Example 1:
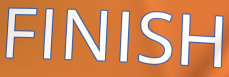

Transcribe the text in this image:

FINISH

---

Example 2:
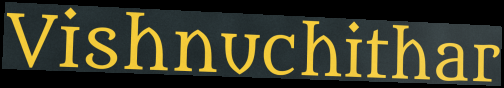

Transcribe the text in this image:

Vishnuchithar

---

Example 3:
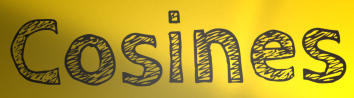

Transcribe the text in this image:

Cosines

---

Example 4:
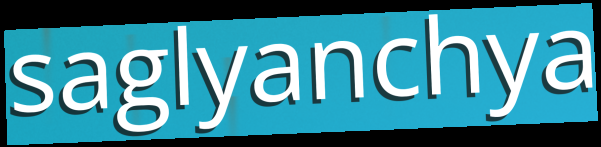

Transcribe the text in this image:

saglyanchya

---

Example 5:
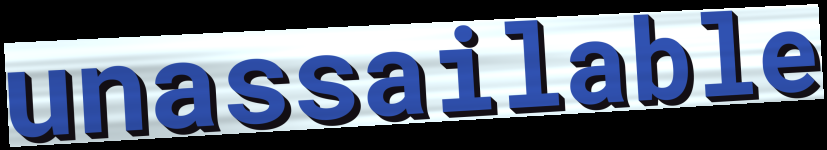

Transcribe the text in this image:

unassailable